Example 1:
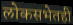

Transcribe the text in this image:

लोकसभेतही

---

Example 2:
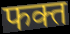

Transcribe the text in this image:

फक्‍त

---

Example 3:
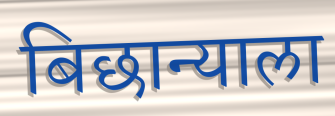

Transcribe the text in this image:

बिछान्याला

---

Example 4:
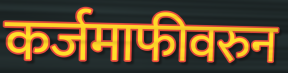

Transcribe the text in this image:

कर्जमाफीवरुन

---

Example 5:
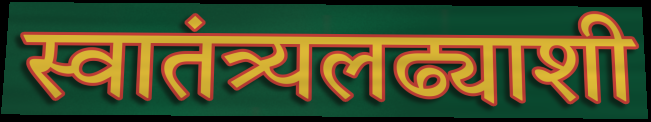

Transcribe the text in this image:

स्वातंत्र्यलढ्याशी